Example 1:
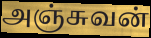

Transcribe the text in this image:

அஞ்சுவன்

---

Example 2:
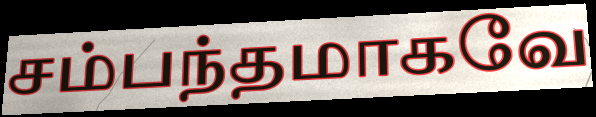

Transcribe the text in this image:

சம்பந்தமாகவே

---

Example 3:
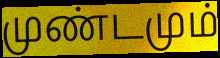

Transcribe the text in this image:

முண்டமும்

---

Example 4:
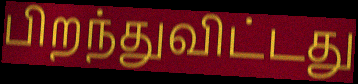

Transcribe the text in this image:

பிறந்துவிட்டது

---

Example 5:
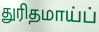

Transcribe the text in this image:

துரிதமாய்ப்